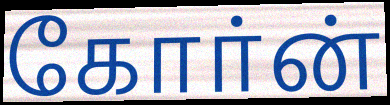
கோர்ன்